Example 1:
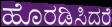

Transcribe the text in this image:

ಹೊರಡಿಸಿದರೆ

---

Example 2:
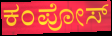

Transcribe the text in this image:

ಕಂಪೋಸ್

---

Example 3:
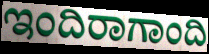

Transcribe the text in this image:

ಇಂದಿರಾಗಾಂದಿ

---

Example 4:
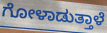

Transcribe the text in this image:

ಗೋಳಾಡುತ್ತಾಳೆ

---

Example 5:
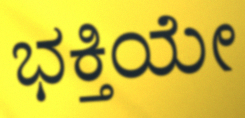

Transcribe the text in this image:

ಭಕ್ತಿಯೇ